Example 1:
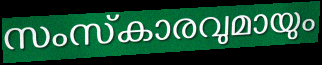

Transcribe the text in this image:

സംസ്‌കാരവുമായും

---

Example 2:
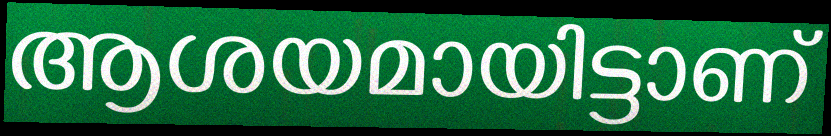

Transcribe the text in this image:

ആശയമായിട്ടാണ്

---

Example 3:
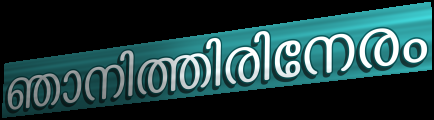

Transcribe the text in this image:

ഞാനിത്തിരിനേരം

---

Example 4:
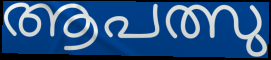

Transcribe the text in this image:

ആപത്സു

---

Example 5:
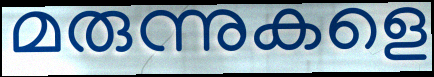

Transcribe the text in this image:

മരുന്നുകളെ